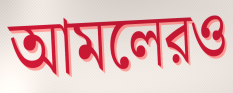
আমলেরও